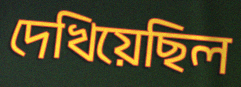
দেখিয়েছিল